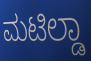
ಮಟಿಲ್ಡಾ